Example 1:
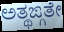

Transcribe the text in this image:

ಅತ್ಥಙ್ಗತೇ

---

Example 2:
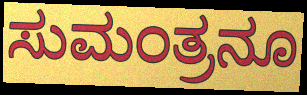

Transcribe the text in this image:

ಸುಮಂತ್ರನೂ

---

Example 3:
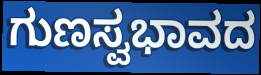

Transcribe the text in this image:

ಗುಣಸ್ವಭಾವದ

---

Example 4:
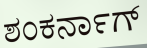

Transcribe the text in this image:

ಶಂಕರ್ನಾಗ್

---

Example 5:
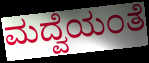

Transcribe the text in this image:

ಮದ್ವೆಯಂತೆ